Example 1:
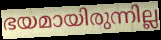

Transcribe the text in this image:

ഭയമായിരുന്നില്ല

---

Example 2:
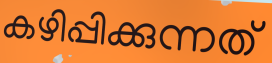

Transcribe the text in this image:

കഴിപ്പിക്കുന്നത്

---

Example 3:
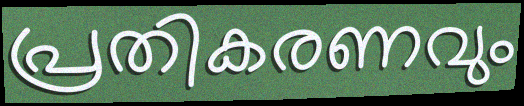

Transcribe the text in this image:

പ്രതികരണവും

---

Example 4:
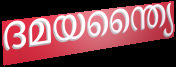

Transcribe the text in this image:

ദമയന്ത്യൈ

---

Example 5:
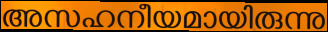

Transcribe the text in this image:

അസഹനീയമായിരുന്നു